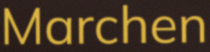
Marchen